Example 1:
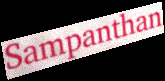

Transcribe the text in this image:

Sampanthan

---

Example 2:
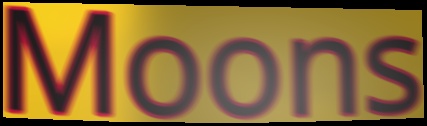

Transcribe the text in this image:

Moons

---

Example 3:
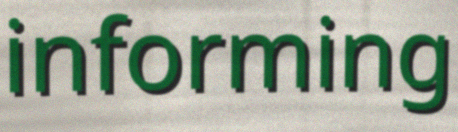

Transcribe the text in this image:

informing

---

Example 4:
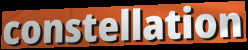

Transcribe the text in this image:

constellation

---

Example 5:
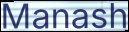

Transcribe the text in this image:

Manash